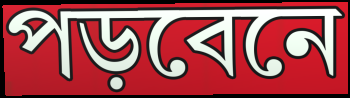
পড়বেনে